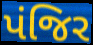
પંજિર